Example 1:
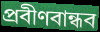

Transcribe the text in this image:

প্রবীণবান্ধব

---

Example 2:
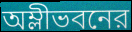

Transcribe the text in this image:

অম্লীভবনের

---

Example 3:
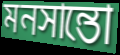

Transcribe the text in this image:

মনসান্তো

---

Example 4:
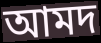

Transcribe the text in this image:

আমদ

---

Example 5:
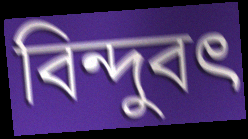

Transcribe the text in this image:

বিন্দুবৎ